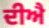
ਦੀਐ